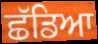
ਛੱਡਿਆ